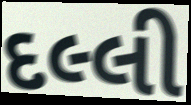
દલ્લી